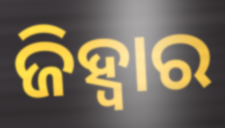
ଜିହ୍ଵାର